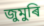
জুমুৰি